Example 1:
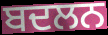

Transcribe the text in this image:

ਬਦਲਨ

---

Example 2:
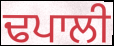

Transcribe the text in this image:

ਢਪਾਲੀ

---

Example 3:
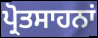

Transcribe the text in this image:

ਪ੍ਰੋਤਸਾਹਨਾਂ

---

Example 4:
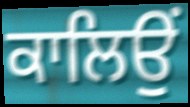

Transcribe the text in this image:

ਕਾਲਿਉਂ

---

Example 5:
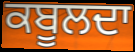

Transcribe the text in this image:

ਕਬੂਲਦਾ